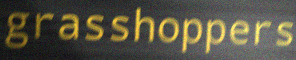
grasshoppers